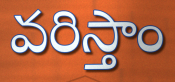
వరిస్తాం